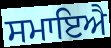
ਸਮਾਇਐ